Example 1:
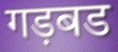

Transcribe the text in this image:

गड़बड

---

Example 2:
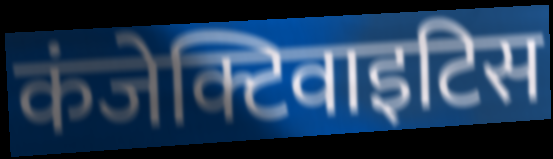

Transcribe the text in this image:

कंजेक्टिवाइटिस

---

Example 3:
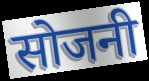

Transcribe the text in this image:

सोजनी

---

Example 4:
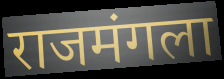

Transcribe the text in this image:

राजमंगला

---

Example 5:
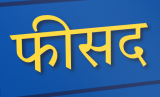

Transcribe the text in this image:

फीसद